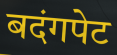
बदंगपेट